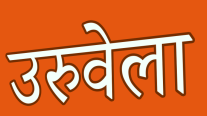
उरुवेला